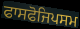
ਫਾਸਫੋਜਿਪਸਮ